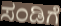
ಸಂಡಿಗೆ